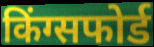
किंग्सफोर्ड